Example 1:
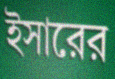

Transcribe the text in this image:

ইসারের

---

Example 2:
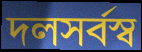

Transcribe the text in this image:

দলসর্বস্ব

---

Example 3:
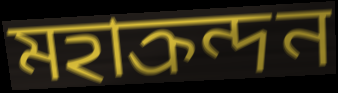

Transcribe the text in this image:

মহাক্রন্দন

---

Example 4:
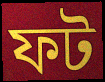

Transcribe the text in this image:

ফট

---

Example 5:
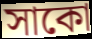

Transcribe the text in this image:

সাকো